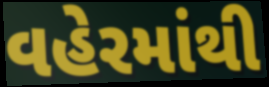
વહેરમાંથી